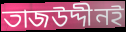
তাজউদ্দীনই